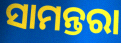
ସାମନ୍ତରା